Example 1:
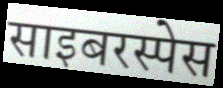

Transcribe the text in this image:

साइबरस्पेस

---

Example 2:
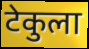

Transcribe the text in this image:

टेकुला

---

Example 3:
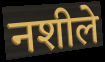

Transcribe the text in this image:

नशीले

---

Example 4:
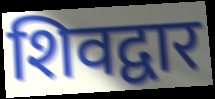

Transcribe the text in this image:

शिवद्वार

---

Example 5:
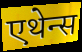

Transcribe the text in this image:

एथेन्स